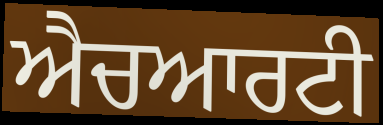
ਐਚਆਰਟੀ